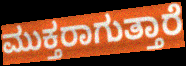
ಮುಕ್ತರಾಗುತ್ತಾರೆ